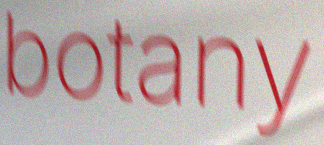
botany